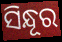
ସିନ୍ଧୂର